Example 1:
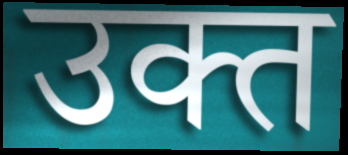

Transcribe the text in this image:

उक्त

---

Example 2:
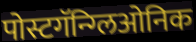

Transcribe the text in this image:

पोस्टगॅन्ग्लिओनिक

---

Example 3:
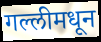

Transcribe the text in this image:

गल्लीमधून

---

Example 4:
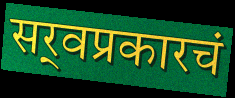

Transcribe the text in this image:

सर्वप्रकारचं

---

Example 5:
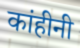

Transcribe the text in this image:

कांहीनी